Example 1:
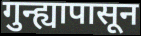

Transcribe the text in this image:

गुन्ह्यापासून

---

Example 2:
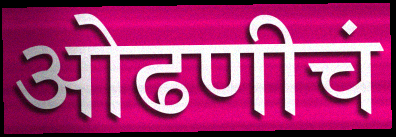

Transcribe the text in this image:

ओढणीचं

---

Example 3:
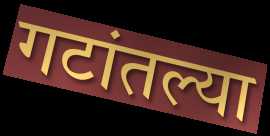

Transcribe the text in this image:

गटांतल्या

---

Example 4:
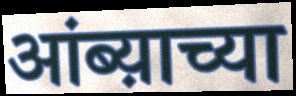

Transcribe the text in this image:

आंब्य़ाच्या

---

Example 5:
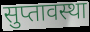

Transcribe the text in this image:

सुप्तावस्था